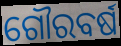
ଗୌରବର୍ଷ